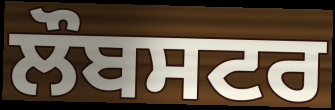
ਲੌਬਸਟਰ